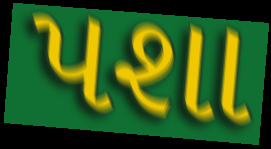
પશા